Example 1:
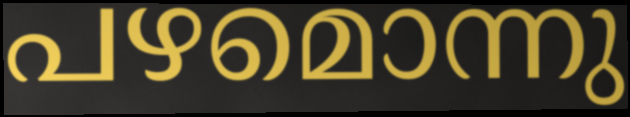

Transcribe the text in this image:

പഴമൊന്നു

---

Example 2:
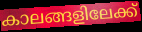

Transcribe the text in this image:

കാലങ്ങളിലേക്ക്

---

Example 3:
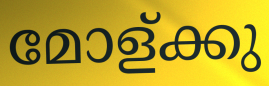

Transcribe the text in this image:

മോള്ക്കു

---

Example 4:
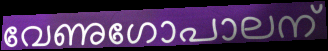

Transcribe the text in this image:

വേണുഗോപാലന്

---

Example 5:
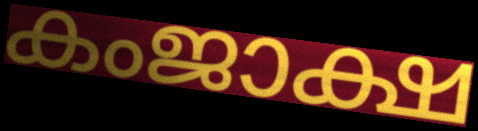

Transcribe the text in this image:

കംജാക്ഷ